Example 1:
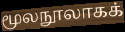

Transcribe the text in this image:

மூலநூலாகக்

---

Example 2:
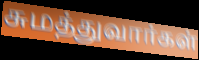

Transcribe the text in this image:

சுமத்துவார்கள்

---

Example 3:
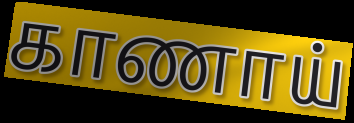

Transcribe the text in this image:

காணாய்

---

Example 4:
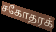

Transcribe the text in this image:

சகோதரக்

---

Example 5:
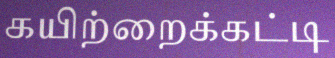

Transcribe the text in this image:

கயிற்றைக்கட்டி